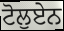
ਟੋਲੁਏਨ